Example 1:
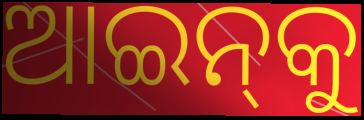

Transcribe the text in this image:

ଆଇନ୍‍କୁ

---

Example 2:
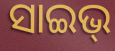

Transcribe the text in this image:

ସାଇଭ୍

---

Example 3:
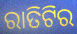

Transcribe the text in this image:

ରାତିଟିର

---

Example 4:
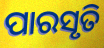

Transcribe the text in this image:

ପାରସୃତି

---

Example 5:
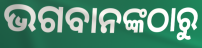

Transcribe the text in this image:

ଭଗବାନଙ୍କଠାରୁ